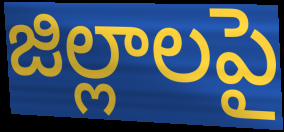
జిల్లాలపై